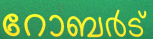
റോബർട്